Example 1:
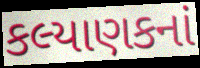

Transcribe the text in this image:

કલ્યાણકનાં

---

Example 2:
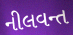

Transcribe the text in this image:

નીલવન્ત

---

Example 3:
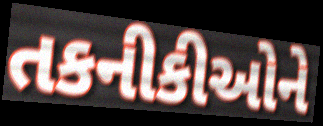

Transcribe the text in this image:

તકનીકીઓને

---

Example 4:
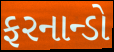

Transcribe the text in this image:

ફરનાન્ડો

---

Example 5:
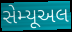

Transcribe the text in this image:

સેમ્યૂઅલ